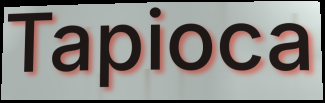
Tapioca